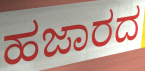
ಹಜಾರದ